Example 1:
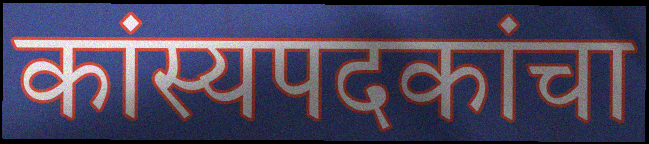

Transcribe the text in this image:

कांस्यपदकांचा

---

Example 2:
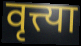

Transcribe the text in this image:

वृत्त्या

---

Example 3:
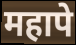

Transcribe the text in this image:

महापे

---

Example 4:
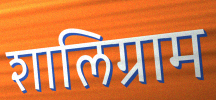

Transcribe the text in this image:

शालिग्राम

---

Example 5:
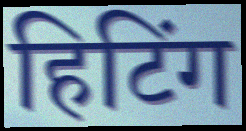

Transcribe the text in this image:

हिटिंग